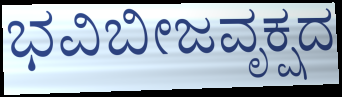
ಭವಿಬೀಜವೃಕ್ಷದ